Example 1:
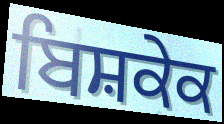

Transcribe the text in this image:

ਬਿਸ਼ਕੇਕ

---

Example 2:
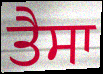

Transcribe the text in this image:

ਤੈਸਾ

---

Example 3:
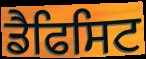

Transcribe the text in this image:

ਡੈਫਿਸਿਟ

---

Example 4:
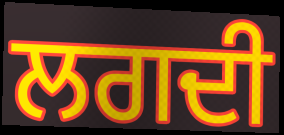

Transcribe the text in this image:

ਲਗਦੀ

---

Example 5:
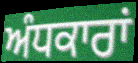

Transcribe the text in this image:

ਅੰਧਕਾਰਾਂ